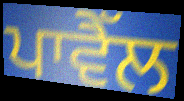
ਪਾਵੈੱਲ